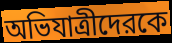
অভিযাত্রীদেরকে